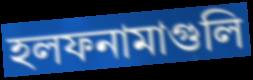
হলফনামাগুলি